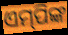
ଏମ୍‌ପିଙ୍କ